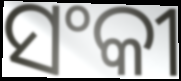
ସଂକୀ